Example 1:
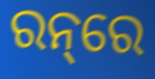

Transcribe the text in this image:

ରନ୍‌ରେ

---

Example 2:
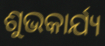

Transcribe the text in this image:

ଶୁଭକାର୍ଯ୍ୟ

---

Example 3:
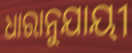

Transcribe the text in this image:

ଧାରାନୁଯାୟୀ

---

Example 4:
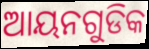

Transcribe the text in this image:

ଆୟନଗୁଡିକ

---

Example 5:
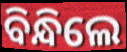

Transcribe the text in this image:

ବିନ୍ଧିଲେ